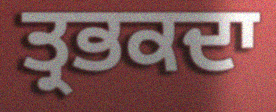
ਤ੍ਰਭਕਦਾ